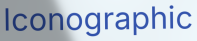
Iconographic